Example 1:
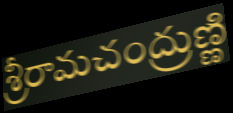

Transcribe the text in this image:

శ్రీరామచంద్రుణ్ణి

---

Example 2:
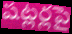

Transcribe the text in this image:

షట్లర్లపై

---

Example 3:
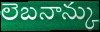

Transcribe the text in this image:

లెబనాన్కు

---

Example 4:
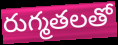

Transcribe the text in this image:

రుగ్మతలతో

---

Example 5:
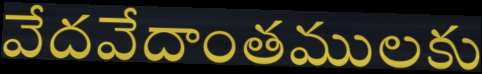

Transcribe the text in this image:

వేదవేదాంతములకు